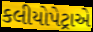
કલીયોપેટ્રાએ